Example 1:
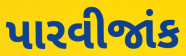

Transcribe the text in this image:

પારવીજાંક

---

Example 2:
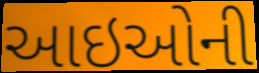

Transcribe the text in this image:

આઇઓની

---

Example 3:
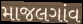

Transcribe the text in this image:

માજલગાંવ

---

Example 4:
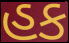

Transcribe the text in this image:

હક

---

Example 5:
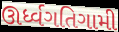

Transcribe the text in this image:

ઊર્ધ્વગતિગામી